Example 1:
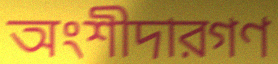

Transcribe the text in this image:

অংশীদারগণ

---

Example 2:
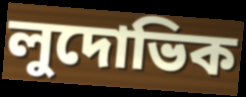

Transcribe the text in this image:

লুদোভিক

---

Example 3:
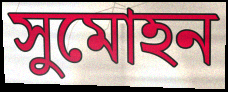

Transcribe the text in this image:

সুমোহন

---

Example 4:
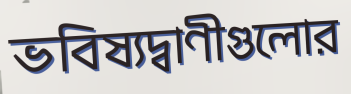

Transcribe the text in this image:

ভবিষ্যদ্বাণীগুলোর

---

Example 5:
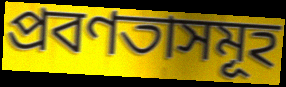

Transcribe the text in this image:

প্রবণতাসমূহ